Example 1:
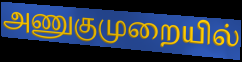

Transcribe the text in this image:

அணுகுமுறையில்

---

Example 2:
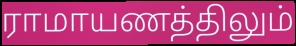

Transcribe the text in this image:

ராமாயணத்திலும்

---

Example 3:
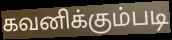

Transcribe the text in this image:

கவனிக்கும்படி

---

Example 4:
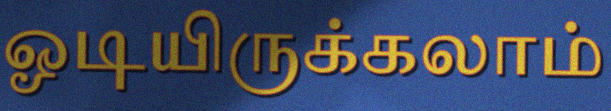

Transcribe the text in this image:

ஓடியிருக்கலாம்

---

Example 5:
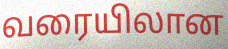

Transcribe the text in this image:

வரையிலான